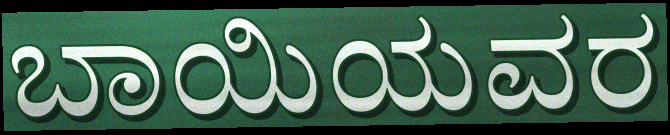
ಬಾಯಿಯವರ